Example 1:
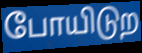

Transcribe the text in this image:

போயிடுற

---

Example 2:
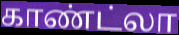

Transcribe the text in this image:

காண்ட்லா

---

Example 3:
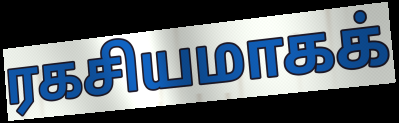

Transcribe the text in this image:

ரகசியமாகக்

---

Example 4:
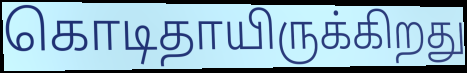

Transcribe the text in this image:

கொடிதாயிருக்கிறது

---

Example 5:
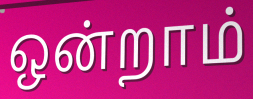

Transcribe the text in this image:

ஒன்றாம்